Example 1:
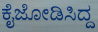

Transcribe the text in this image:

ಕೈಜೋಡಿಸಿದ್ದ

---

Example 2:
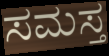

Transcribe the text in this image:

ಸಮಸ್ತ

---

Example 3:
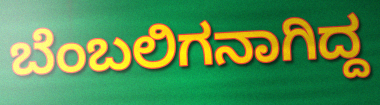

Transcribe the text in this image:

ಬೆಂಬಲಿಗನಾಗಿದ್ದ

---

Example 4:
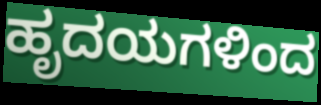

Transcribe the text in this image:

ಹೃದಯಗಳಿಂದ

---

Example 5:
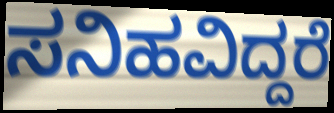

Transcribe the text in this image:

ಸನಿಹವಿದ್ದರೆ